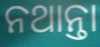
ନଥାନ୍ତା